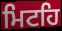
ਮਿਟਹਿ